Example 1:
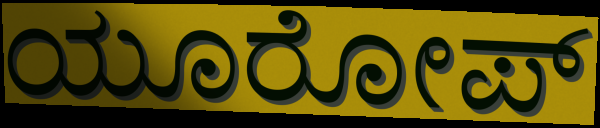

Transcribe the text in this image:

ಯೂರೋಪ್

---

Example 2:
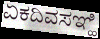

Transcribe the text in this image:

ಏಕದಿವಸಞ್ಹಿ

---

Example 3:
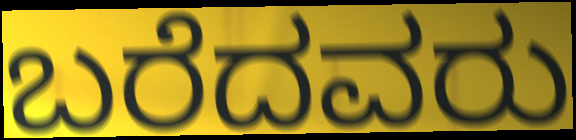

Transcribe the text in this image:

ಬರೆದವರು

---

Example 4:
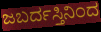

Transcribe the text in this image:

ಜಬರ್ದಸ್ತಿನಿಂದ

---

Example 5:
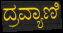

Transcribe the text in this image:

ದ್ರವ್ಯಾಣಿ